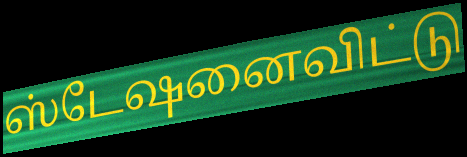
ஸ்டேஷனைவிட்டு